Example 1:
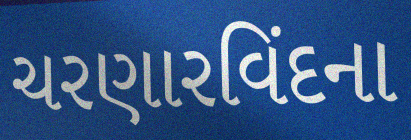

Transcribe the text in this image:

ચરણારવિંદના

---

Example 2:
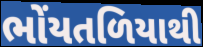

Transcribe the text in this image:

ભોંયતળિયાથી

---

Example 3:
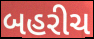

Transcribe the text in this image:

બહરીચ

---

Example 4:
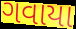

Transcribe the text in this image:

ગવાયા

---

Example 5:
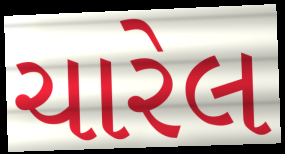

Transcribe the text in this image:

ચારેલ